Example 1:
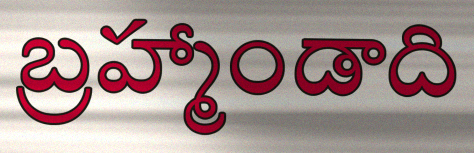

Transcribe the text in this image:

బ్రహ్మాండాది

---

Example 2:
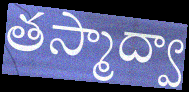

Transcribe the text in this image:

తస్మాద్వా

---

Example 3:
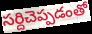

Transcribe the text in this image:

సర్దిచెప్పడంతో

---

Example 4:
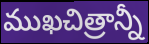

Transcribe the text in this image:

ముఖచిత్రాన్నీ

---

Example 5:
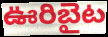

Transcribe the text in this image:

ఊరిబైట